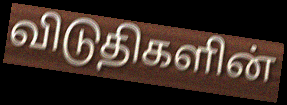
விடுதிகளின்